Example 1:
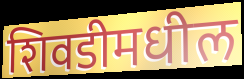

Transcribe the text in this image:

शिवडीमधील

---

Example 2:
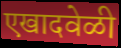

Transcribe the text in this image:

एखादवेळी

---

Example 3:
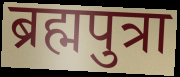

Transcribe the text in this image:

ब्रह्मपुत्रा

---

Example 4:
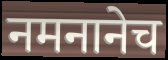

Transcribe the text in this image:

नमनानेच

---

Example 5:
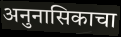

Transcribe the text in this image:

अनुनासिकाचा